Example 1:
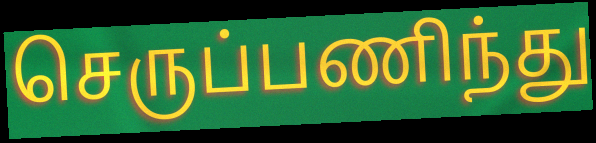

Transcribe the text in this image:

செருப்பணிந்து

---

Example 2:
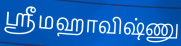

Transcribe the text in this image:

ஸ்ரீமஹாவிஷ்ணு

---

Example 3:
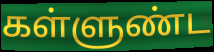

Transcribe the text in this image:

கள்ளுண்ட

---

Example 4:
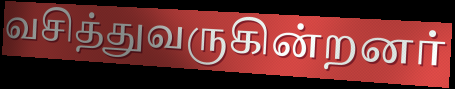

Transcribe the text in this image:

வசித்துவருகின்றனர்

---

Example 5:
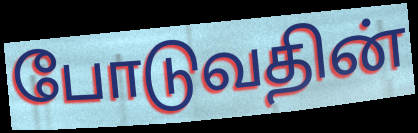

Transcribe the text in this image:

போடுவதின்